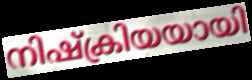
നിഷ്ക്രിയയായി